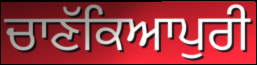
ਚਾਣੱਕਿਆਪੁਰੀ